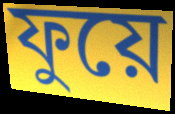
ফুয়ে